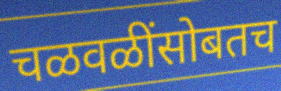
चळवळींसोबतच